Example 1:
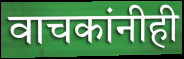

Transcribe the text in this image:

वाचकांनीही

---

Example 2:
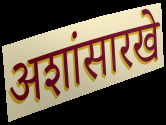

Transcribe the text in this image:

अशांसारखे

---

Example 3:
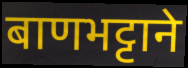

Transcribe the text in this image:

बाणभट्टाने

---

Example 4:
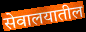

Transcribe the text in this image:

सेवालयातील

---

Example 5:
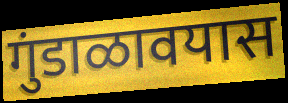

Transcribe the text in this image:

गुंडाळावयास